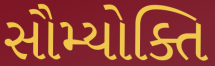
સૌમ્યોક્તિ